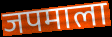
जपमाला